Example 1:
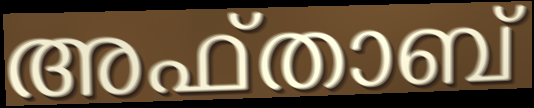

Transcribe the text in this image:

അഫ്താബ്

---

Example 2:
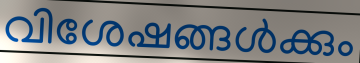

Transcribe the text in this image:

വിശേഷങ്ങൾക്കും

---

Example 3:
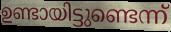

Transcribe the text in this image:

ഉണ്ടായിട്ടുണ്ടെന്ന്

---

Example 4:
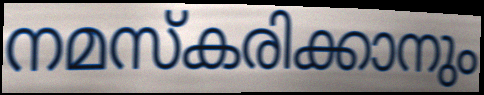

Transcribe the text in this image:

നമസ്കരിക്കാനും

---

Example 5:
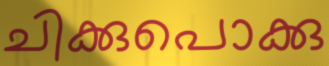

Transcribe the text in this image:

ചിക്കുപൊക്കു